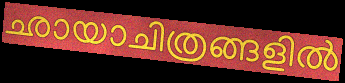
ഛായാചിത്രങ്ങളിൽ